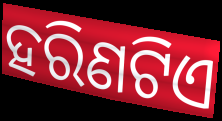
ହରିଣଟିଏ